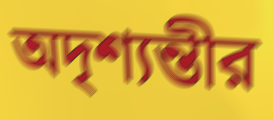
অদৃশ্যন্তীর